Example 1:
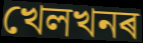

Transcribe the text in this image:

খেলখনৰ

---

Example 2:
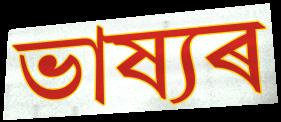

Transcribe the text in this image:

ভাষ্যৰ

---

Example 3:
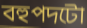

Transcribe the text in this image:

বহুপদটো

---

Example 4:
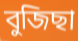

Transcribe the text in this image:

বুজিছা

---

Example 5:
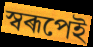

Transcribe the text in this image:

স্বৰূপেই